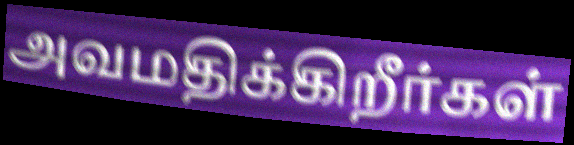
அவமதிக்கிறீர்கள்